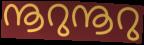
നൂറുനൂറു